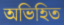
অভিহিত